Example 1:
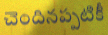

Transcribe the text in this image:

చెందినప్పటికీ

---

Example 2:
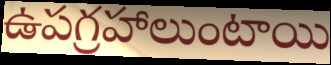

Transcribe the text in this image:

ఉపగ్రహాలుంటాయి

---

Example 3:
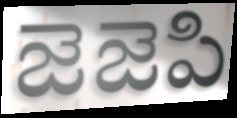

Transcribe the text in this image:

జెజెపి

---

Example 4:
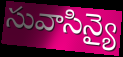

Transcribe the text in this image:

సువాసిన్యై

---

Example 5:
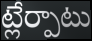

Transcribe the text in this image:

ట్లేర్పాటు